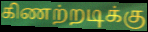
கிணற்றடிக்கு